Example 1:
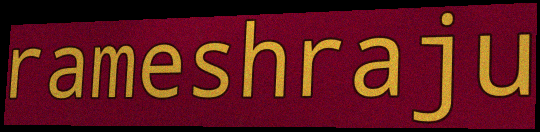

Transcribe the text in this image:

rameshraju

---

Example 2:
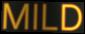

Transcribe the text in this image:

MILD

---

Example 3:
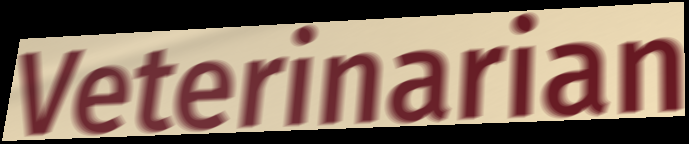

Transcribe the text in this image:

Veterinarian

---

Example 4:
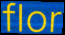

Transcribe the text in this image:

flor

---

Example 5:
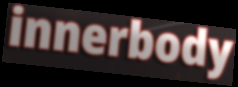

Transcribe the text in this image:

innerbody